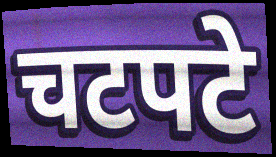
चटपटे